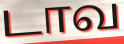
டாவ